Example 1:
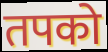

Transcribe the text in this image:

तपको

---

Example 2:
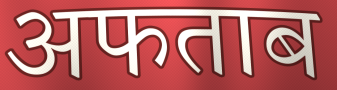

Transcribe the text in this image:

अफताब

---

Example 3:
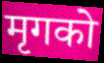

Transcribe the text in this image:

मृगको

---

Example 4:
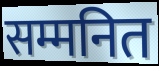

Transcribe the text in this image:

सम्मनित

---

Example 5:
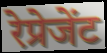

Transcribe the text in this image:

रेप्रेजेंट